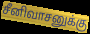
சீனிவாசனுக்கு